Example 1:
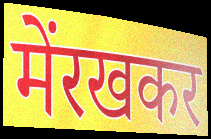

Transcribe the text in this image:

मेंरखकर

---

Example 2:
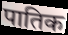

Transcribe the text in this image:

पातिक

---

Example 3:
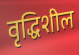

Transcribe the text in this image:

वृद्धिशील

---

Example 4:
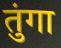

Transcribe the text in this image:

तुंगा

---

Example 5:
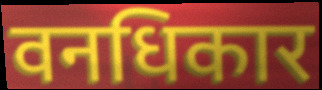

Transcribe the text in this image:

वनधिकार